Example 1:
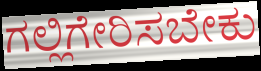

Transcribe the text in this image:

ಗಲ್ಲಿಗೇರಿಸಬೇಕು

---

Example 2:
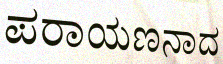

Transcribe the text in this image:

ಪರಾಯಣನಾದ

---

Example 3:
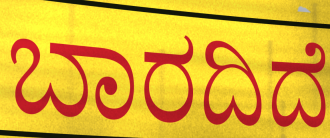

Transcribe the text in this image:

ಬಾರದಿದೆ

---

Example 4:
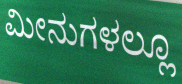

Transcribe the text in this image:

ಮೀನುಗಳಲ್ಲೂ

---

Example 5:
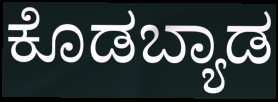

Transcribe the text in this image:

ಕೊಡಬ್ಯಾಡ